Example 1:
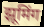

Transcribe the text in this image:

झूमिंग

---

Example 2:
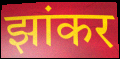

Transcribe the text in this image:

झांकर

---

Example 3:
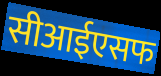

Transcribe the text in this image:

सीआईएसफ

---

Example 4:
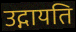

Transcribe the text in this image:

उद्गायति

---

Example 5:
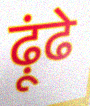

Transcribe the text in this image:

ढ़ूंढे